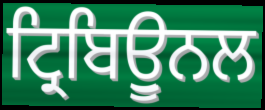
ਟ੍ਰਿਬਿਊੁਨਲ